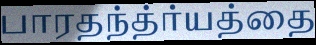
பாரதந்த்ர்யத்தை